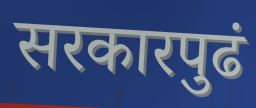
सरकारपुढं